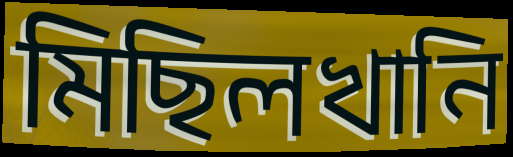
মিছিলখানি